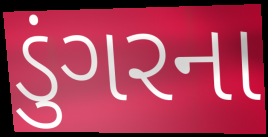
ડુંગરના